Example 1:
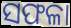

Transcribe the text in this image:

ସଫଳା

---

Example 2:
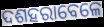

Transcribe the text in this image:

ଦଶହରାବେଳେ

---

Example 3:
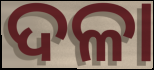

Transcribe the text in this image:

ଦଳା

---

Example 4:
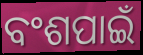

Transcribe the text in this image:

ବଂଶପାଇଁ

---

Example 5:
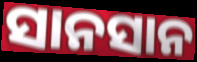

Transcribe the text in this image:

ସାନସାନ